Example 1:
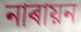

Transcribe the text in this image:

নাৰায়ন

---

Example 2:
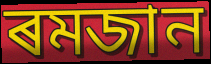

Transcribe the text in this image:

ৰমজান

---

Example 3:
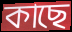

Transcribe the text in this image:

কাছে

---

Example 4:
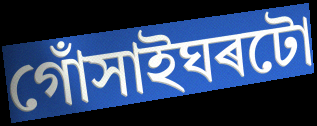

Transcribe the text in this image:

গোঁসাইঘৰটো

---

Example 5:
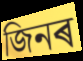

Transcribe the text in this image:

জিনৰ